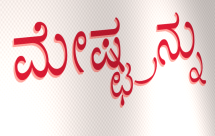
ಮೇಷ್ಟ್ರನ್ನು